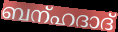
ബന്ഹദാദ്